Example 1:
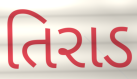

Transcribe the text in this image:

તિરાડ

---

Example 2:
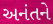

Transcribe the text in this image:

અનંતને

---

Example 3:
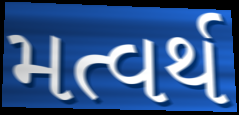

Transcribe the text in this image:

મત્વર્થ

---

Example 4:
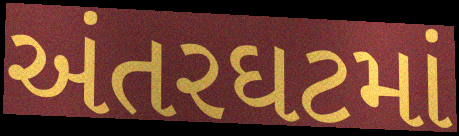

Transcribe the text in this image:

અંતરઘટમાં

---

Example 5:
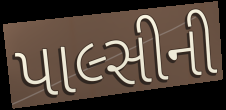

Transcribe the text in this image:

પાલ્સીની